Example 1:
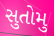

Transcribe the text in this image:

સુતોમુ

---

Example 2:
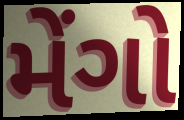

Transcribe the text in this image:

મેંગો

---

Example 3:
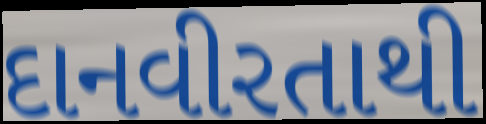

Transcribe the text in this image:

દાનવીરતાથી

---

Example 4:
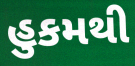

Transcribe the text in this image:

હુકમથી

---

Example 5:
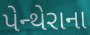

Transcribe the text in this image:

પેન્થેરાના